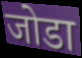
जोडा